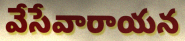
వేసేవారాయన